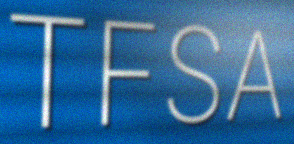
TFSA